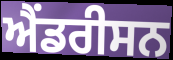
ਐਂਡਰੀਸਨ